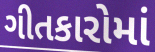
ગીતકારોમાં